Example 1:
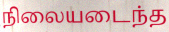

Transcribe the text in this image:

நிலையடைந்த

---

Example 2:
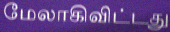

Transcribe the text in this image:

மேலாகிவிட்டது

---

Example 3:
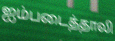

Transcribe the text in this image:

ஐம்படைத்தாலி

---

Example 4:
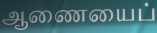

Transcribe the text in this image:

ஆணையைப்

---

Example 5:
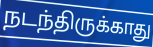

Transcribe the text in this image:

நடந்திருக்காது